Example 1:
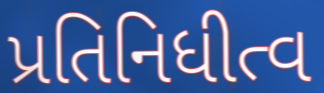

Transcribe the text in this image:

પ્રતિનિધીત્વ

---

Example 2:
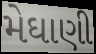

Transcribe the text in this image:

મેઘાણી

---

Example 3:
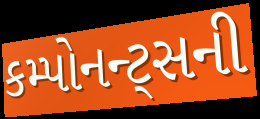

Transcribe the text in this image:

કમ્પોનન્ટ્સની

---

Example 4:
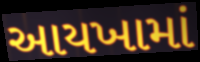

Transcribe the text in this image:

આયખામાં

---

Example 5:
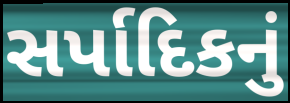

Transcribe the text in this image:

સર્પાદિકનું